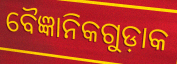
ବୈଜ୍ଞାନିକଗୁଡ଼ାକ